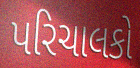
પરિચાલકો